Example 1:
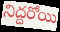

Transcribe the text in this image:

నిద్దరోయి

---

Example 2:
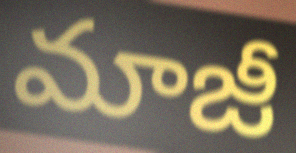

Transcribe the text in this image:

మాజీ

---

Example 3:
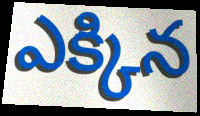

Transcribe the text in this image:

ఎక్కిన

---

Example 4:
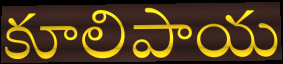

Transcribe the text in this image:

కూలిపాయ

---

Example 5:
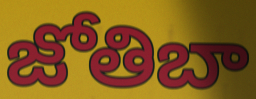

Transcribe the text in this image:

జోతిబా